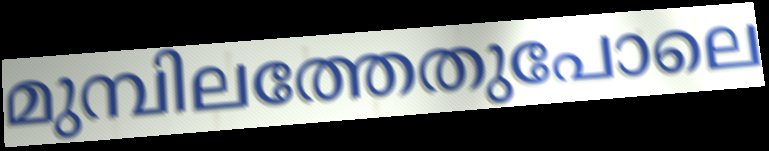
മുമ്പിലത്തേതുപോലെ